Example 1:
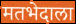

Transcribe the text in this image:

मतभेदाला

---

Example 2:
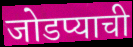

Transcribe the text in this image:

जोडप्याची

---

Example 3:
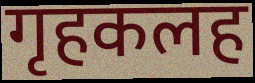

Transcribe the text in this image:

गृहकलह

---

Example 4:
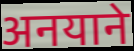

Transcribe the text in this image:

अनयाने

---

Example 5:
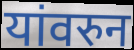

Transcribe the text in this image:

यांवरुन